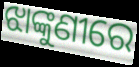
ଝାଙ୍କୁଣୀରେ